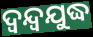
ଦ୍ୱନ୍ଦ୍ୱଯୁଦ୍ଧ